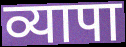
व्यापा